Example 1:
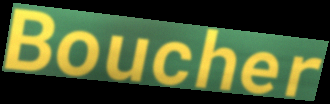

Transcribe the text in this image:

Boucher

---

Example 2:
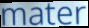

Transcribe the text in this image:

mater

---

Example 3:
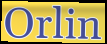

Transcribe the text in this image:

Orlin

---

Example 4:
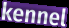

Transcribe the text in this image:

kennel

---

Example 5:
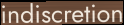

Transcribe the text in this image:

indiscretion